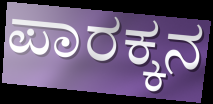
ಪಾರಕ್ಕನ